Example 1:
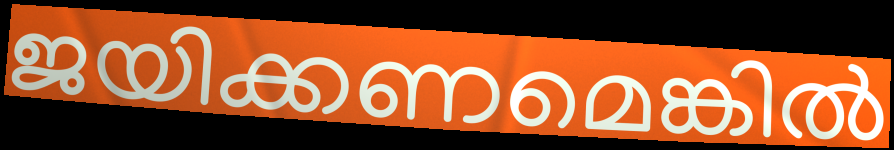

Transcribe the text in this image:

ജയിക്കണമെങ്കിൽ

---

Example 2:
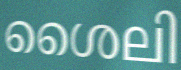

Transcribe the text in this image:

ശൈലി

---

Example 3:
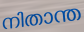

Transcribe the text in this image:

നിതാന്ത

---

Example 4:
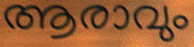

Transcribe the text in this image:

ആരാവും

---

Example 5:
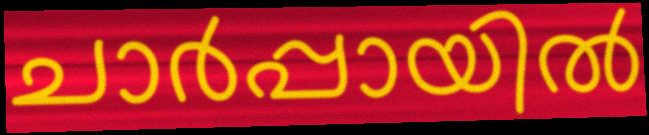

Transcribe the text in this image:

ചാർപ്പായിൽ